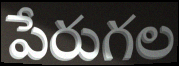
పేరుగల